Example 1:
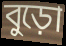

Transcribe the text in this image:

বুড়ো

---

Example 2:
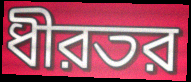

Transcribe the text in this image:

ধীরতর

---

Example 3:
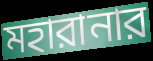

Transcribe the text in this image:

মহারানার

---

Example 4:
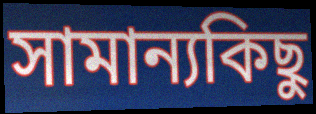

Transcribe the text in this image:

সামান্যকিছু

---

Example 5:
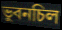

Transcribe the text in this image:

ভুবনচিল